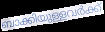
ബാക്കിയുള്ളവർക്ക്